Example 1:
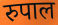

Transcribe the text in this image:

रुपाल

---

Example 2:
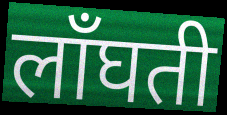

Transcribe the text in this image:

लाँघती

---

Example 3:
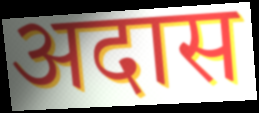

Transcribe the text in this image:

अदास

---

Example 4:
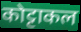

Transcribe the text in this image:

कोट्टाकल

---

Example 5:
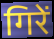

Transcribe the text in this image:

गिरें